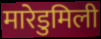
मारेडुमिली